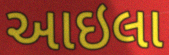
આઇલા